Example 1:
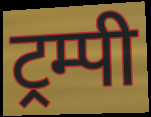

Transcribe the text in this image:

ट्रम्पी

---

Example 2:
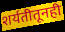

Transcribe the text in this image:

शर्यतीतूनही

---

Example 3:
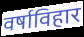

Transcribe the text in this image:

वर्षाविहार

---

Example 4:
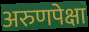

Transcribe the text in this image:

अरुणपेक्षा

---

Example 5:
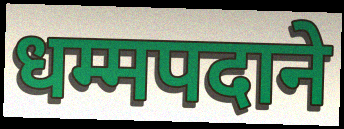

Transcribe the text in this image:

धम्मपदाने